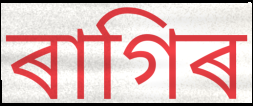
ৰাগিৰ